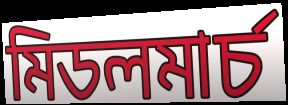
মিডলমাৰ্চ